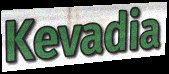
Kevadia